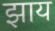
झाय